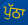
ਪੁੱਠਾ